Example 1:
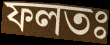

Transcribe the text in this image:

ফলতঃ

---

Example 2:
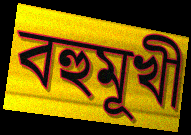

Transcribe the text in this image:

বহুমূখী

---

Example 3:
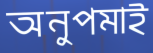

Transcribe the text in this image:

অনুপমাই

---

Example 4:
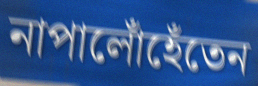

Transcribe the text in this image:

নাপালোঁহেঁতেন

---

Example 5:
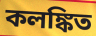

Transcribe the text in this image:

কলঙ্কিত